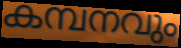
കമ്പനവും